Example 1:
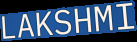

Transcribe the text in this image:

LAKSHMI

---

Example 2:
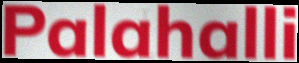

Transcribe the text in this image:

Palahalli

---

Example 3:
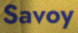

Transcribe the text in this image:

Savoy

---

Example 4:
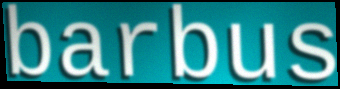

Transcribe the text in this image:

barbus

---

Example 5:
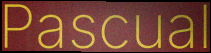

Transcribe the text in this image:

Pascual